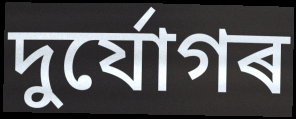
দুৰ্যোগৰ